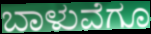
ಬಾಳುವೆಗೂ